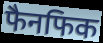
फैनफिक